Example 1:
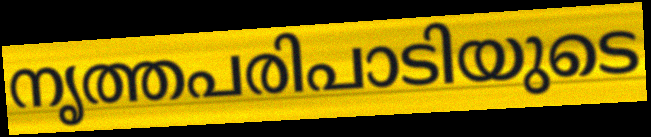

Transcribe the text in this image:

നൃത്തപരിപാടിയുടെ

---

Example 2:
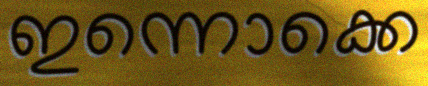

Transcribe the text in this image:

ഇന്നൊക്കെ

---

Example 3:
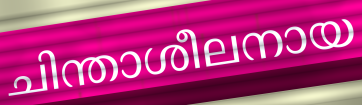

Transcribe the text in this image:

ചിന്താശീലനായ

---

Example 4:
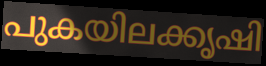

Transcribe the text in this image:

പുകയിലക്കൃഷി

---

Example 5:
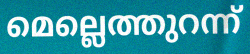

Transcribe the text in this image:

മെല്ലെത്തുറന്ന്